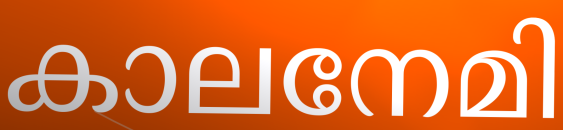
കാലനേമി